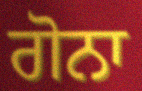
ਗੋਨਾ